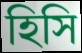
হিসি